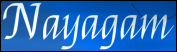
Nayagam